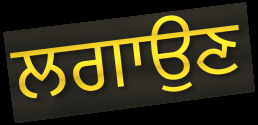
ਲਗਾਉਣ